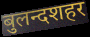
बुलन्दशहर